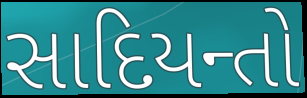
સાદિયન્તો